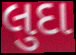
લુદા